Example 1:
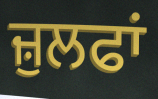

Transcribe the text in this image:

ਜ਼ੁਲਫਾਂ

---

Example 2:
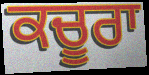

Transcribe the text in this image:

ਕਚੂਰਾ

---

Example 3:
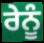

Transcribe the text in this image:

ਰੇਨੂੰ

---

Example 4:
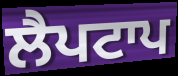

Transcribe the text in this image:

ਲੈਪਟਾਪ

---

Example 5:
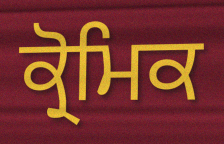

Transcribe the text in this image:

ਕ੍ਰੋਮਿਕ